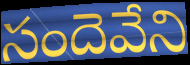
సందెవేని